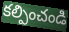
కల్పించండి